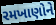
રમખાણોને